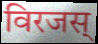
विरजस्